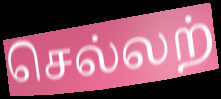
செல்லற்